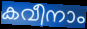
കവീനാം